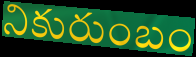
నికురుంబం